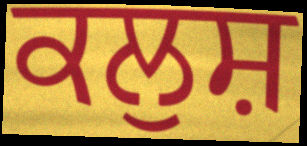
ਕਲੁਸ਼